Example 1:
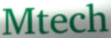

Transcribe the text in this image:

Mtech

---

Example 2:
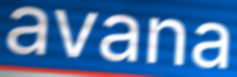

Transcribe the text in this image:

avana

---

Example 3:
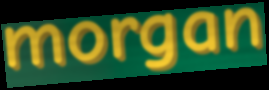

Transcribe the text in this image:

morgan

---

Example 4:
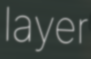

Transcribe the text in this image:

layer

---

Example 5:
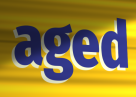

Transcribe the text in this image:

aged